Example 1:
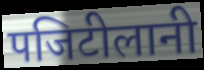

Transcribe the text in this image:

पजिटीलानी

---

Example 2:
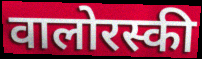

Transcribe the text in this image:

वालोरस्की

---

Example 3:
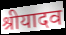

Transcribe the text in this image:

श्रीयादव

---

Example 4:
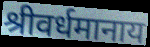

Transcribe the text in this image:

श्रीवर्धमानाय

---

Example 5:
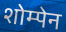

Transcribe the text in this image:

शोम्पेन